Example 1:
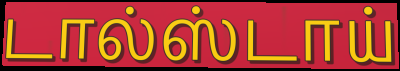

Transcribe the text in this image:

டால்ஸ்டாய்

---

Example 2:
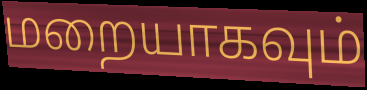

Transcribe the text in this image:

மறையாகவும்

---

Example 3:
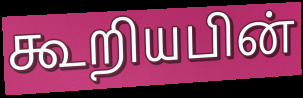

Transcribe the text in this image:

கூறியபின்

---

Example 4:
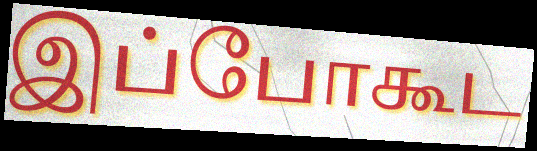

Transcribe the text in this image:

இப்போகூட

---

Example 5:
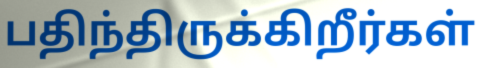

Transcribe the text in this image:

பதிந்திருக்கிறீர்கள்